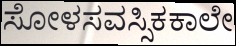
ಸೋಳಸವಸ್ಸಿಕಕಾಲೇ